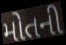
મોતની